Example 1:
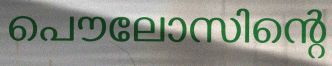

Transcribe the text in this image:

പൌലോസിന്റെ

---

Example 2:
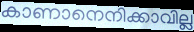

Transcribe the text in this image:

കാണാനെനിക്കാവില്ല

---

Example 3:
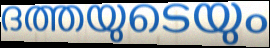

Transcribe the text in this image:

ദത്തയുടെയും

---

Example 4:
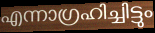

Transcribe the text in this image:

എന്നാഗ്രഹിച്ചിട്ടും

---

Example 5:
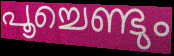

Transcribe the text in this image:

പൂച്ചെണ്ടും